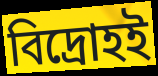
বিদ্রোহই